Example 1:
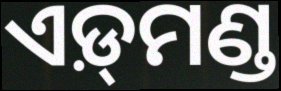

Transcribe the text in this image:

ଏଡ଼୍‌ମଣ୍ଡ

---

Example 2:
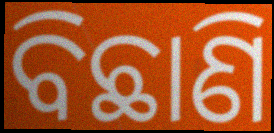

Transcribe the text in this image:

ବିଛାଣି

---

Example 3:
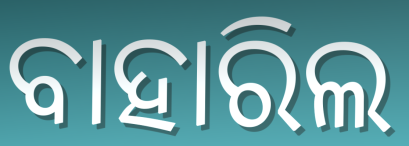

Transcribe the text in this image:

ବାହାରିଲ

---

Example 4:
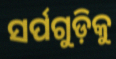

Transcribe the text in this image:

ସର୍ପଗୁଡ଼ିକୁ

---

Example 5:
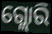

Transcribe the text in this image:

ଗ୍ଲୋରି